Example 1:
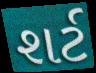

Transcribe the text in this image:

શર્ટ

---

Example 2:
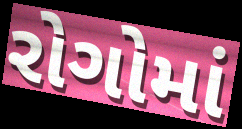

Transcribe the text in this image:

રોગોમાં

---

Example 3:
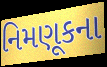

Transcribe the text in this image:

નિમણૂકના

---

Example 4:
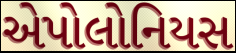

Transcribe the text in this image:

એપોલોનિયસ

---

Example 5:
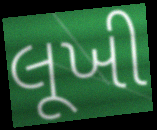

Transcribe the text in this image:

લૂખી